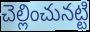
చెల్లించునట్టి